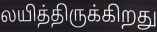
லயித்திருக்கிறது